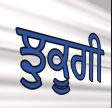
ਝੁਕੂਗੀ